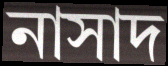
নাসাদ